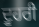
ਦੂਹਰੀ